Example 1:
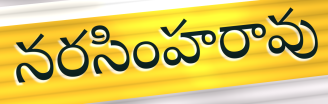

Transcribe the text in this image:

నరసింహరావు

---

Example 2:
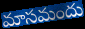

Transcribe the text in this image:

మాసమందు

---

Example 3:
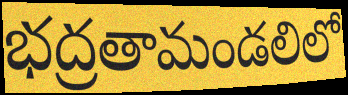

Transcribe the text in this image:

భద్రతామండలిలో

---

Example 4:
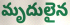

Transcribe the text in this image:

మృదులైన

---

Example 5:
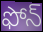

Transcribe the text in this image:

ఫోన్